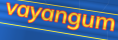
vayangum